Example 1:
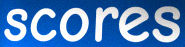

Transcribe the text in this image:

scores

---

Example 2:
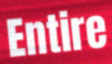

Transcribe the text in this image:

Entire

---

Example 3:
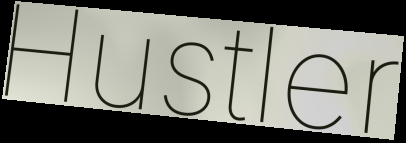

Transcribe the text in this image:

Hustler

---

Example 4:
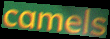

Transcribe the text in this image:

camels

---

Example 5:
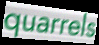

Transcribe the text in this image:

quarrels